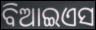
ବିଆଇଏସ